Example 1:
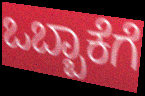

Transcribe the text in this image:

ಒಬ್ಬಾಕೆಗೆ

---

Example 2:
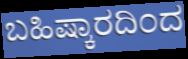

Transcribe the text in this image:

ಬಹಿಷ್ಕಾರದಿಂದ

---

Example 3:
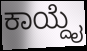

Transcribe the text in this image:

ಕಾಯ್ದೈ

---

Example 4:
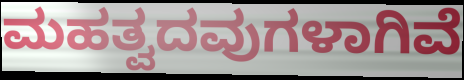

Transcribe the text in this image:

ಮಹತ್ವದವುಗಳಾಗಿವೆ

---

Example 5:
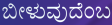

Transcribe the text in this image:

ಬೀಳುವುದೆಂಬ